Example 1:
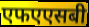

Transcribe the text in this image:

एफएएसबी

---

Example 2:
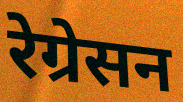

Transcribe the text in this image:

रेग्रेसन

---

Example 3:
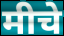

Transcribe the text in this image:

मीचे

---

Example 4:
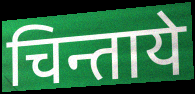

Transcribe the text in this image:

चिन्ताये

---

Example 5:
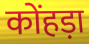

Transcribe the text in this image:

कोंहड़ा